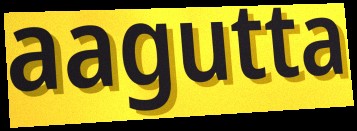
aagutta